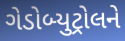
ગેડોબ્યુટ્રોલને